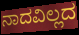
ನಾದವಿಲ್ಲದ